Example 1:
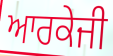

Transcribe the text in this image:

ਆਰਕੇਜੀ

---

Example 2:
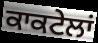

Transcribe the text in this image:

ਕਾਕਟੇਲਾਂ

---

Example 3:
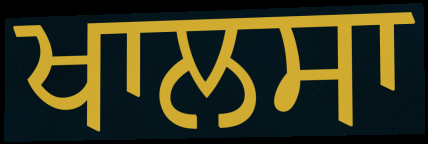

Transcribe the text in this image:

ਖਾਲਸਾ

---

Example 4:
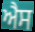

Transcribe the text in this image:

ਐਸ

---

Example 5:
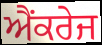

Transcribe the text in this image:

ਐਂਕਰੇਜ